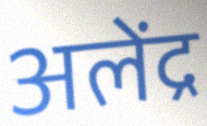
अलेंद्र